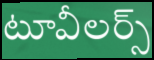
టూవీలర్స్